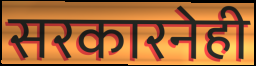
सरकारनेही